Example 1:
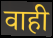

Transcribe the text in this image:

वाही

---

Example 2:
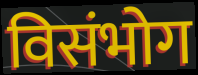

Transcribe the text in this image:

विसंभोग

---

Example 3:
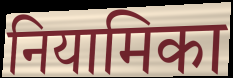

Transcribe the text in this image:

नियामिका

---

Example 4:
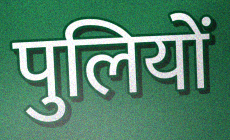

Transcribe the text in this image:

पुलियों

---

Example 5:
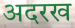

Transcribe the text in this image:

अदरख